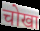
चोखा